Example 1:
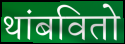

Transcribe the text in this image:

थांबवितो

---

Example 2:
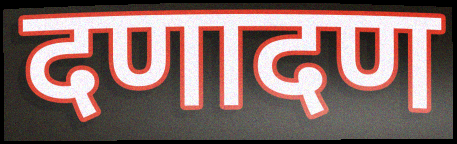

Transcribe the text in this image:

दणादण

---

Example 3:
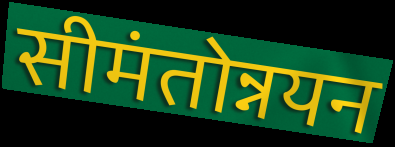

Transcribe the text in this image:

सीमंतोन्नयन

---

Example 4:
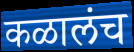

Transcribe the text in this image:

कळालंच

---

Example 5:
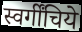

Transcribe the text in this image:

स्वर्गींचिये